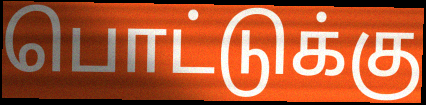
பொட்டுக்கு